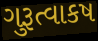
ગુરૂત્વાકષ